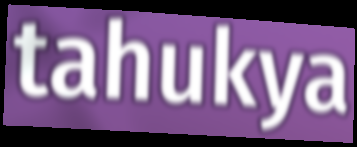
tahukya